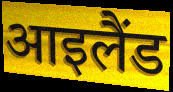
आइलैंड